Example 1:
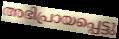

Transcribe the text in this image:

അഭിപ്രായപ്പെട്ടു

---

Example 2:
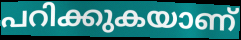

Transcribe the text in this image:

പറിക്കുകയാണ്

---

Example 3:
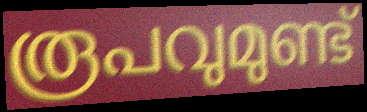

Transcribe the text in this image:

രൂപവുമുണ്ട്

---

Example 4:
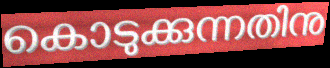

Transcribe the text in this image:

കൊടുക്കുന്നതിനു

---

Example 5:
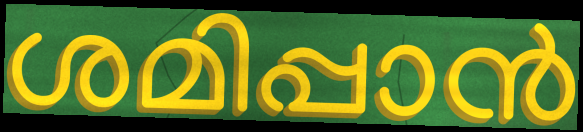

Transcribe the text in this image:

ശമിപ്പാൻ